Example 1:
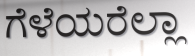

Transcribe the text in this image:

ಗೆಳೆಯರೆಲ್ಲಾ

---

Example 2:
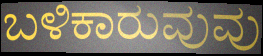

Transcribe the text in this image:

ಬಳಿಕಾರುವುವು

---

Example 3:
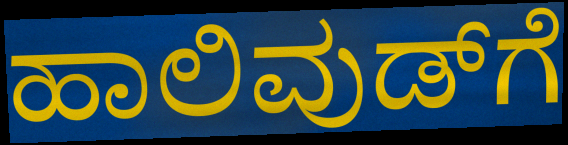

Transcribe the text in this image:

ಹಾಲಿವುಡ್‌ಗೆ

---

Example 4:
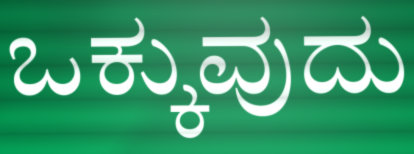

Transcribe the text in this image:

ಒಕ್ಕುವುದು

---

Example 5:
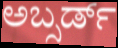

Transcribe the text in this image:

ಅಬ್ಸರ್ಡ್